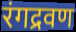
रंगद्रवण